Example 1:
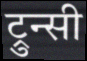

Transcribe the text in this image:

ट्रुन्सी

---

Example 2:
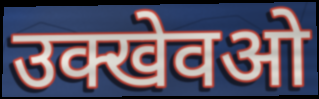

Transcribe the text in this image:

उक्खेवओ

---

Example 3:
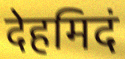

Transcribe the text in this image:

देहमिदं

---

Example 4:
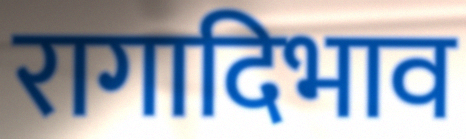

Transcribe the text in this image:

रागादिभाव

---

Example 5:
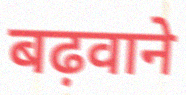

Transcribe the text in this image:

बढ़वाने